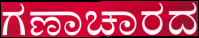
ಗಣಾಚಾರದ